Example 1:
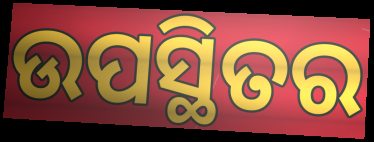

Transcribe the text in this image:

ଉପସ୍ଥିତର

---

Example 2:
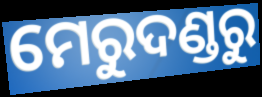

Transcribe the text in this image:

ମେରୁଦଣ୍ଡରୁ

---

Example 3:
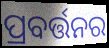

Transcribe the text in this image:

ପ୍ରବର୍ତ୍ତନର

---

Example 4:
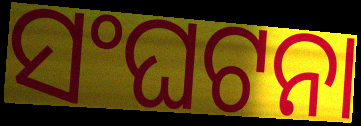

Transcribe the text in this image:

ସଂଘଟନା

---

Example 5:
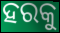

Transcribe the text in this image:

ହରକୁ